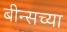
बीन्सच्या